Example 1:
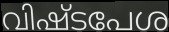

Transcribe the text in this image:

വിഷ്ടപേശ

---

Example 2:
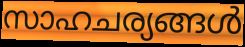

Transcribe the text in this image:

സാഹചര്യങ്ങൾ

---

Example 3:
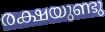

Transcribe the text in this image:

രക്ഷയുണ്ടു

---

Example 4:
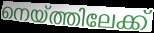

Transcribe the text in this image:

നെയ്ത്തിലേക്ക്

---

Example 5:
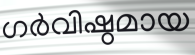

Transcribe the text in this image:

ഗർവിഷ്ഠമായ